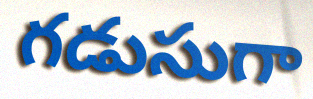
గడుసుగా